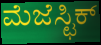
ಮೆಜೆಸ್ಟಿಕ್